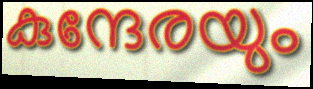
കുന്ദേരയും